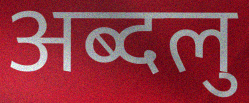
अब्दलु